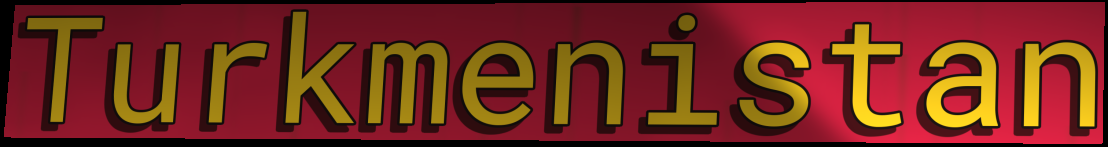
Turkmenistan